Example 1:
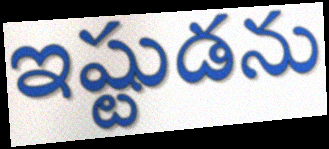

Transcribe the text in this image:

ఇష్టుడను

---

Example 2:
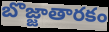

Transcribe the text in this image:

బొజ్జాతారకం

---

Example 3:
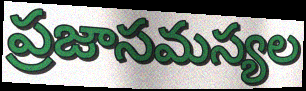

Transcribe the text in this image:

ప్రజాసమస్యల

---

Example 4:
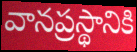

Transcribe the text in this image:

వానప్రస్థానికి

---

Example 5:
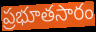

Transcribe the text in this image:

ప్రభూతసారం